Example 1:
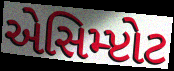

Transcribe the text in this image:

એસિમ્પ્ટોટ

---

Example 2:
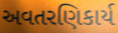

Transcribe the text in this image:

અવતરણિકાર્ય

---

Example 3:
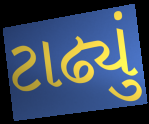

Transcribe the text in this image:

ટાઢ્યું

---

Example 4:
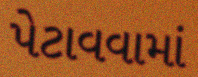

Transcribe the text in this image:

પેટાવવામાં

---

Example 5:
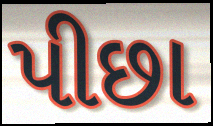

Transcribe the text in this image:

પીછા